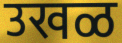
उखळ